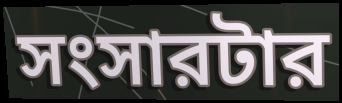
সংসারটার